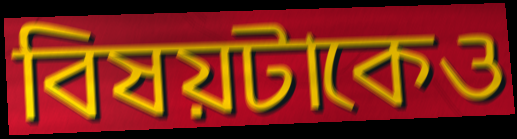
বিষয়টাকেও